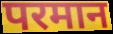
परमान